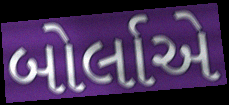
બોર્લાએ